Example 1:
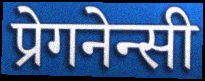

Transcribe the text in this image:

प्रेगनेन्सी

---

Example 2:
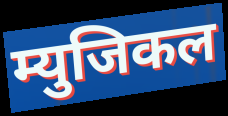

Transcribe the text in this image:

म्युजिकल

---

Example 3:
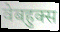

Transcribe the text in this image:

वेबहुक्स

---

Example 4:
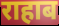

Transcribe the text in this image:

राहाब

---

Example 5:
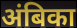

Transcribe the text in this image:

अंबिका